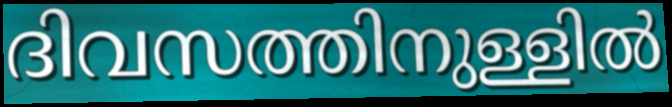
ദിവസത്തിനുള്ളിൽ